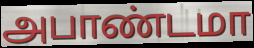
அபாண்டமா